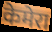
केमेरा